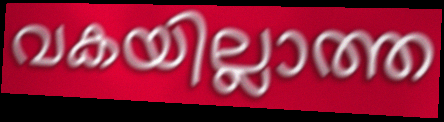
വകയില്ലാത്ത